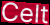
Celt